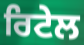
ਰਿਟੇਲ